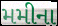
મમીના